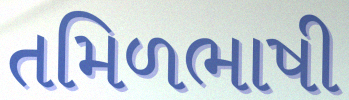
તમિળભાષી